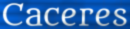
Caceres